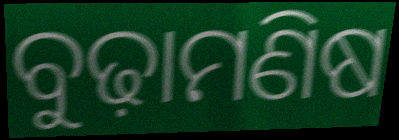
ବୁଢ଼ାମଣିଷ